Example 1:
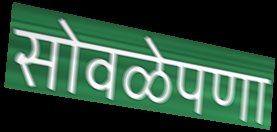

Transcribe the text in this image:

सोवळेपणा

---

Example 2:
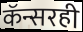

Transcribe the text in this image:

कॅन्सरही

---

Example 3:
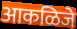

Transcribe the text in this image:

आकळिजे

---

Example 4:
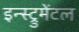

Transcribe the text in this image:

इन्स्ट्रुमेंटल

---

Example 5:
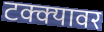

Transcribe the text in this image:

टक्क्यावर